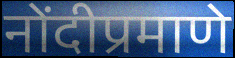
नोंदीप्रमाणे